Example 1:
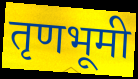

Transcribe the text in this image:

तृणभूमी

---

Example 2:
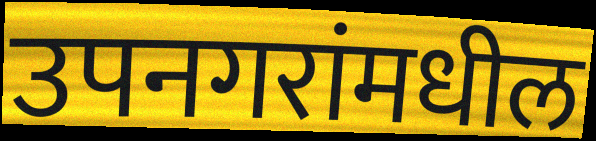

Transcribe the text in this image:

उपनगरांमधील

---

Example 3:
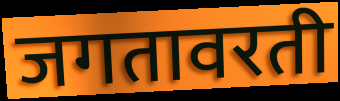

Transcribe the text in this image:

जगतावरती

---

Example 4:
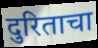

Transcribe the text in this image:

दुरिताचा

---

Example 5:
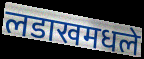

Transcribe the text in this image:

लडाखमधले